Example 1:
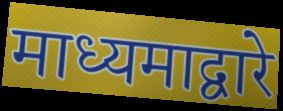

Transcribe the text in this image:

माध्यमाद्वारे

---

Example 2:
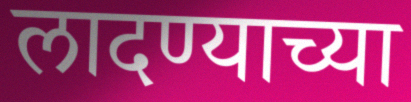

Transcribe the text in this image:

लादण्याच्या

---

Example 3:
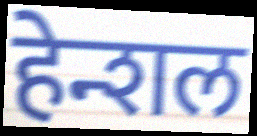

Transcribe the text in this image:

हेन्शल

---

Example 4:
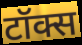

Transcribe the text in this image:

टॉक्स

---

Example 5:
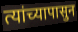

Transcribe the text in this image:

त्यांच्यापासुन